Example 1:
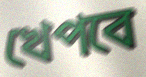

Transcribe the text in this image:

খেপবে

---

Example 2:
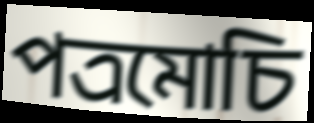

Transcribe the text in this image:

পত্রমোচি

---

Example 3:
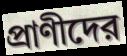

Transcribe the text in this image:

প্রাণীদের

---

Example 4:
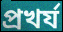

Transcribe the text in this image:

প্রখর্য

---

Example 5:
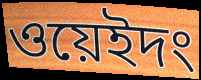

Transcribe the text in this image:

ওয়েইদং